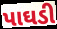
પાઘડી